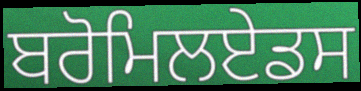
ਬਰੋਮਿਲਏਡਸ